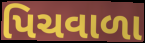
પિચવાળા